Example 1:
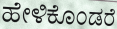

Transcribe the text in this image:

ಹೇಳಿಕೊಂಡರೆ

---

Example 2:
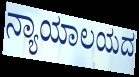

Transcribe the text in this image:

ನ್ಯಾಯಾಲಯದ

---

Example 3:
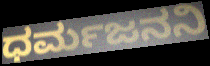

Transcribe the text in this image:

ಧರ್ಮಜನನಿ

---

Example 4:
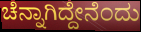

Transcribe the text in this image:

ಚೆನ್ನಾಗಿದ್ದೇನೆಂದು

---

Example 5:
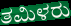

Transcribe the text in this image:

ತಮಿಳರು